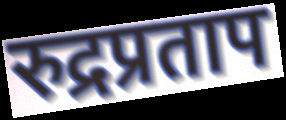
रुद्रप्रताप